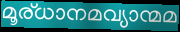
മൂര്ധാനമവ്യാന്മമ